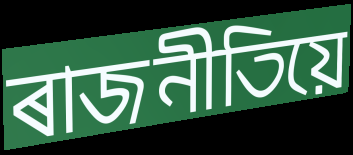
ৰাজনীতিয়ে